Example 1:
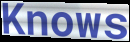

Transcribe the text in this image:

Knows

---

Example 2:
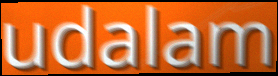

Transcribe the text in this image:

udalam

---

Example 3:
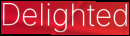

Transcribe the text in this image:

Delighted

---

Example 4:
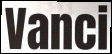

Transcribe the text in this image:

Vanci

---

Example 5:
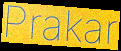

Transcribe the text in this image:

Prakar